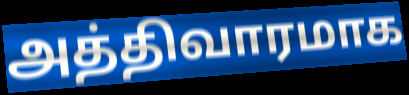
அத்திவாரமாக